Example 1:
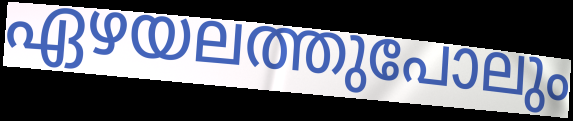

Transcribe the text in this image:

ഏഴയലത്തുപോലും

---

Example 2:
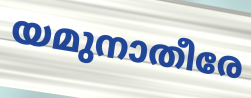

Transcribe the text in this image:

യമുനാതീരേ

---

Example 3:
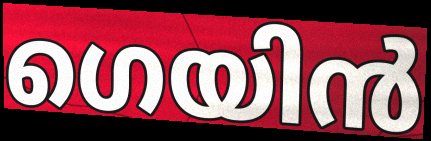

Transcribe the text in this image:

ഗെയിൻ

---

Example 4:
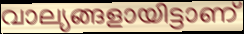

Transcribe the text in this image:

വാല്യങ്ങളായിട്ടാണ്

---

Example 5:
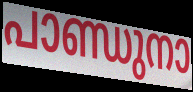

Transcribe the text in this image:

പാണ്ഡുനാ